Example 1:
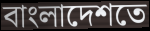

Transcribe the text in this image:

বাংলাদেশতে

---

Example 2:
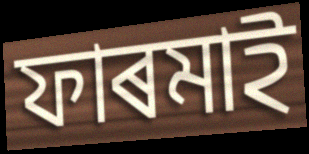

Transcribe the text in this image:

ফাৰমাই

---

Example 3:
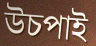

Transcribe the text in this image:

উচপাই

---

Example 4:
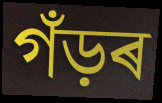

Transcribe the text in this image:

গঁড়ৰ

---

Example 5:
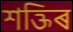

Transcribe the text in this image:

শক্তিৰ